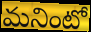
మనింటో